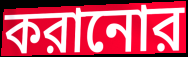
করানোর